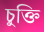
চুক্তি